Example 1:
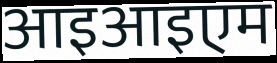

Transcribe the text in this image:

आइआइएम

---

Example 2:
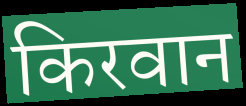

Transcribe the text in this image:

किरवान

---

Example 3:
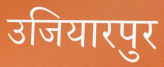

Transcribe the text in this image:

उजियारपुर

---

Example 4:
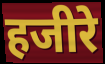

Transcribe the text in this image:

हजीरे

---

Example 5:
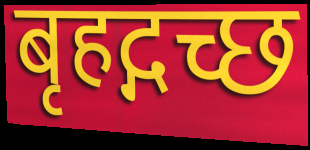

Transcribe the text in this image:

बृहद्गच्छ